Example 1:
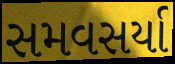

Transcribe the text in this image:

સમવસર્યા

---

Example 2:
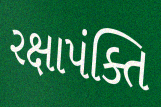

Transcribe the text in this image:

રક્ષાપંક્તિ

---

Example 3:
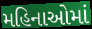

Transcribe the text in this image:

મહિનાઓમાં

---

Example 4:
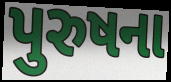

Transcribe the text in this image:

પુરુષના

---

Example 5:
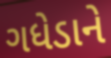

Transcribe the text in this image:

ગધેડાને